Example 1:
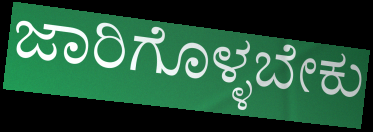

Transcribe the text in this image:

ಜಾರಿಗೊಳ್ಳಬೇಕು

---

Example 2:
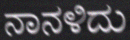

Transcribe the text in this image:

ನಾನಳಿದು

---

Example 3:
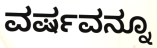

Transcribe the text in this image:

ವರ್ಷವನ್ನೂ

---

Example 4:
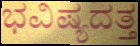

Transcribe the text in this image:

ಭವಿಷ್ಯದತ್ತ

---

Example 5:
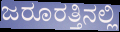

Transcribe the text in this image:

ಜರೂರತ್ತಿನಲ್ಲಿ